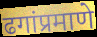
ढगांप्रमाणे